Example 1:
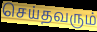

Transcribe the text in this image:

செய்தவரும்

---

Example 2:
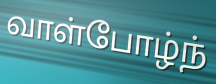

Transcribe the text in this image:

வாள்போழ்ந்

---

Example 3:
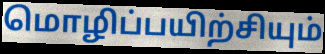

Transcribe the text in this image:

மொழிப்பயிற்சியும்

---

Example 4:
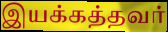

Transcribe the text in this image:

இயக்கத்தவர்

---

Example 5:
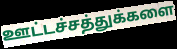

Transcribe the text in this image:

ஊட்டச்சத்துக்களை